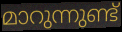
മാറുന്നുണ്ട്